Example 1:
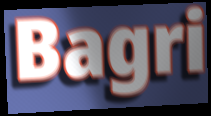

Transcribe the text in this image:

Bagri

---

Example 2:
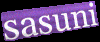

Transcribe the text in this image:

sasuni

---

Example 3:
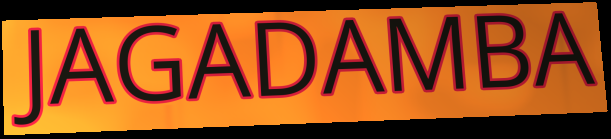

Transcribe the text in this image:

JAGADAMBA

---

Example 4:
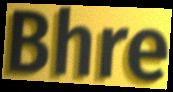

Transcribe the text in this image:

Bhre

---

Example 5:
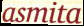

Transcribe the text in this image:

asmita